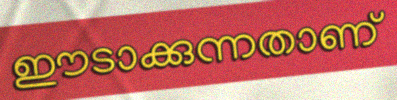
ഈടാക്കുന്നതാണ്